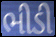
ભીડી